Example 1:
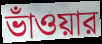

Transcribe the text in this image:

ভাঁওয়ার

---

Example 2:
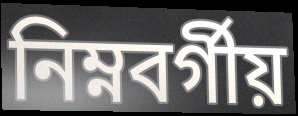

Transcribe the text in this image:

নিম্নবর্গীয়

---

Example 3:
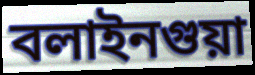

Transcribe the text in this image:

বলাইনগুয়া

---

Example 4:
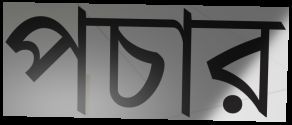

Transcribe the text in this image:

পচার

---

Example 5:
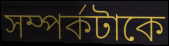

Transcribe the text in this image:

সম্পর্কটাকে